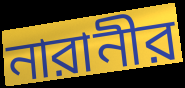
নারানীর